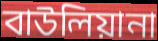
বাউলিয়ানা